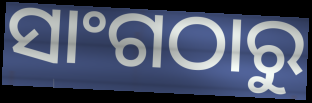
ସାଂଗଠାରୁ